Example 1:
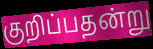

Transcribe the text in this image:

குறிப்பதன்று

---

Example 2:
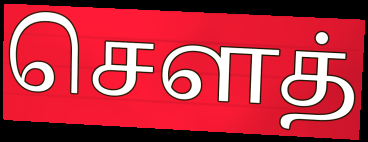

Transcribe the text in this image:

சௌத்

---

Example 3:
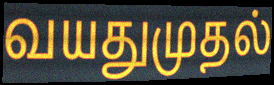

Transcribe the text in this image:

வயதுமுதல்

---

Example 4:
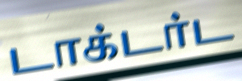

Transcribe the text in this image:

டாக்டர்ட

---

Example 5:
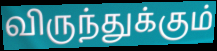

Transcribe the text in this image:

விருந்துக்கும்